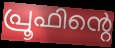
പ്രൂഫിന്റെ